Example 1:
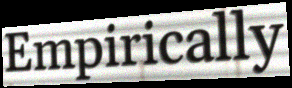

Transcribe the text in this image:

Empirically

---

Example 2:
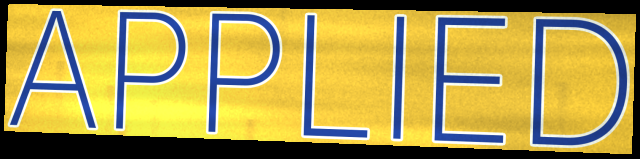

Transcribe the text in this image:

APPLIED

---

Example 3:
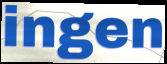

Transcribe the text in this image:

ingen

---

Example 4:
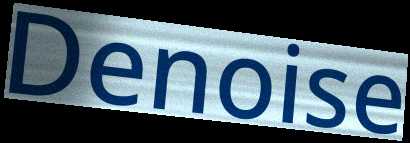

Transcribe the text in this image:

Denoise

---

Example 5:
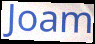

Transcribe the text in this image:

Joam